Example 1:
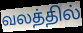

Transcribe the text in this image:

வலத்தில்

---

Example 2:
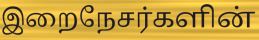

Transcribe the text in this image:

இறைநேசர்களின்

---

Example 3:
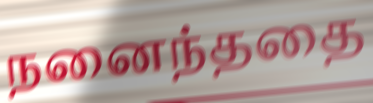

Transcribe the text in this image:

நனைந்ததை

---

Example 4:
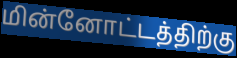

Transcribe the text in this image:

மின்னோட்டத்திற்கு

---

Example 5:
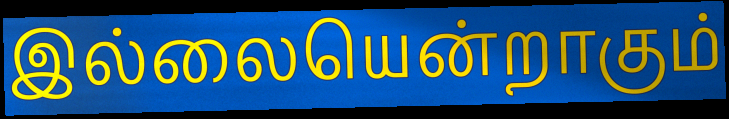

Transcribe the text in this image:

இல்லையென்றாகும்